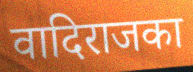
वादिराजका